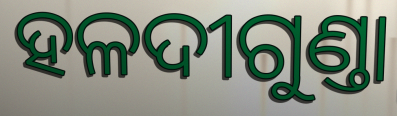
ହଳଦୀଗୁଣ୍ତା